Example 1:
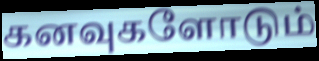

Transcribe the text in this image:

கனவுகளோடும்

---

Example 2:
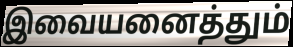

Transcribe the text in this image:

இவையனைத்தும்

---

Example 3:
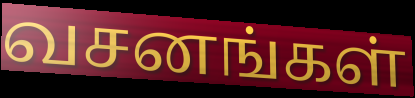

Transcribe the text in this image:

வசனங்கள்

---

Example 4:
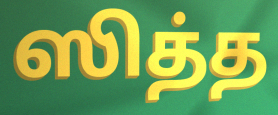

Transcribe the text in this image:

ஸித்த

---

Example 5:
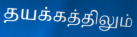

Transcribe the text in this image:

தயக்கத்திலும்